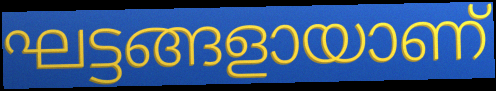
ഘട്ടങ്ങളായാണ്